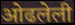
ओढलेली